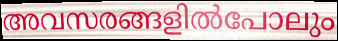
അവസരങ്ങളിൽപോലും